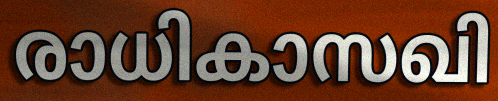
രാധികാസഖി